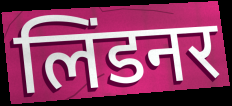
लिंडनर